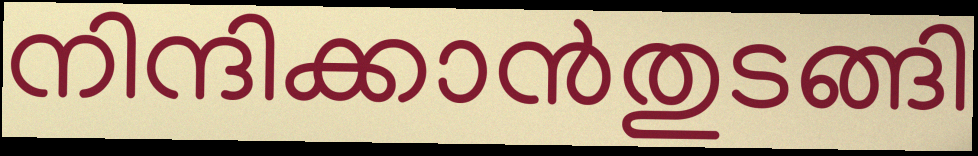
നിന്ദിക്കാൻതുടങ്ങി